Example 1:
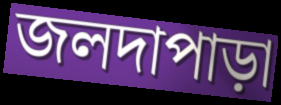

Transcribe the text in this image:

জলদাপাড়া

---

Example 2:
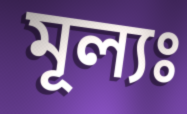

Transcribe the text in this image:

মূল্যঃ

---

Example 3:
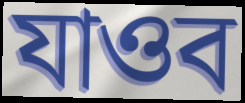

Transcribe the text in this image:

যাওব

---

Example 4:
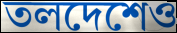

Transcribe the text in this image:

তলদেশেও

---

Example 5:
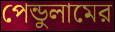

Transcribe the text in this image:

পেন্ডুলামের